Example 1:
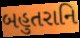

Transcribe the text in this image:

બહુતરાનિ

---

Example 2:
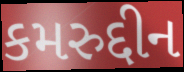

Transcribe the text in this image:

કમરુદ્દીન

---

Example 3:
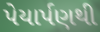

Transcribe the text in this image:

પેયાર્પણથી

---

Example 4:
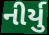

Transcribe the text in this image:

નીર્યુ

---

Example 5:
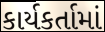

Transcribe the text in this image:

કાર્યકર્તામાં